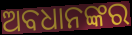
ଅବଧାନଙ୍କର